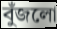
বুঁজলো